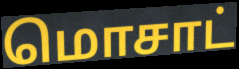
மொசாட்